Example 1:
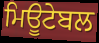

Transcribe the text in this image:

ਮਿਊਟੇਬਲ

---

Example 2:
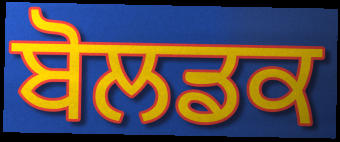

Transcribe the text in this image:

ਬੋਲਡਕ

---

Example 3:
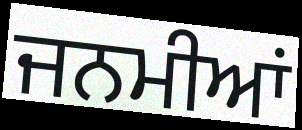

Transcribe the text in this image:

ਜਨਮੀਆਂ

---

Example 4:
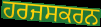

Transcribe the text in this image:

ਹਰਜਸਕਰਨ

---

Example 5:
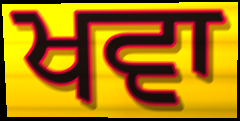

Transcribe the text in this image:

ਖਵਾ